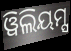
ୱିଲିୟମ୍ସ